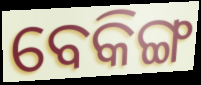
ବେକିଙ୍ଗ